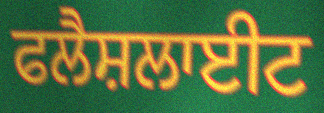
ਫਲੈਸ਼ਲਾਈਟ